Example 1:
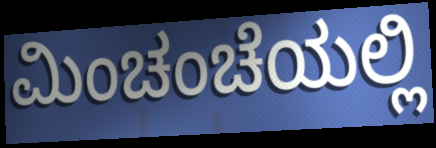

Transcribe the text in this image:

ಮಿಂಚಂಚೆಯಲ್ಲಿ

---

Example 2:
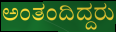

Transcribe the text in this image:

ಅಂತಂದಿದ್ದರು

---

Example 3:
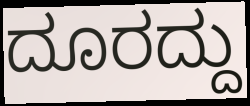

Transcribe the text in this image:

ದೂರದ್ದು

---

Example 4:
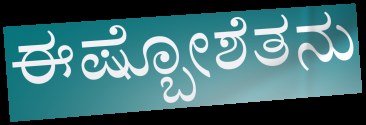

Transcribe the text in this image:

ಈಷ್ಬೋಶೆತನು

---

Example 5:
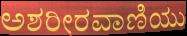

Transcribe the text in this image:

ಅಶರೀರವಾಣಿಯು